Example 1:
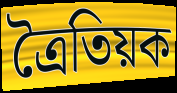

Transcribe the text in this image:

ত্ৰৈতিয়ক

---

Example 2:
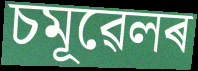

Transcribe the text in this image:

চমূৱেলৰ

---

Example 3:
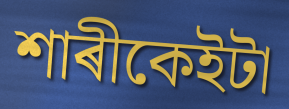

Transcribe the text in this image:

শাৰীকেইটা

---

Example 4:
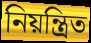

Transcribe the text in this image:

নিয়ন্ত্ৰিত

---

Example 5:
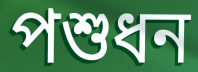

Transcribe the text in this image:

পশুধন